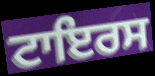
ਟਾਇਰਸ